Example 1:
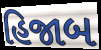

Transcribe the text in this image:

હિજાબ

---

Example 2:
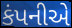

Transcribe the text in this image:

કંપનીએ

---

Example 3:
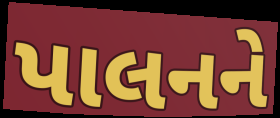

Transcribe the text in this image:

પાલનને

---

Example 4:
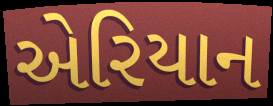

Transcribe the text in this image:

એરિયાન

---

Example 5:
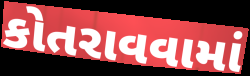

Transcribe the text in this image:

કોતરાવવામાં